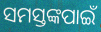
ସମସ୍ତଙ୍କପାଇଁ